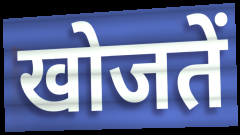
खोजतें